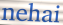
nehai